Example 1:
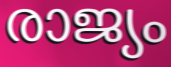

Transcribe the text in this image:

രാജ്യം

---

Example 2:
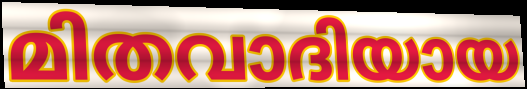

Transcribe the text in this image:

മിതവാദിയായ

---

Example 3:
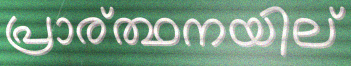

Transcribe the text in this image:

പ്രാര്ത്ഥനയില്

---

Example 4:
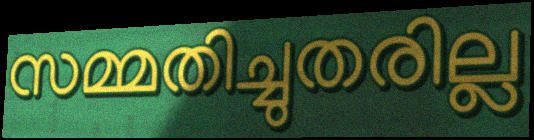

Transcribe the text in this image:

സമ്മതിച്ചുതരില്ല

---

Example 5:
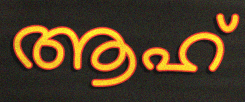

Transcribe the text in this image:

ആഹ്